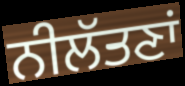
ਨੀਲੱਤਣਾਂ